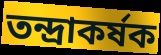
তন্দ্রাকর্ষক